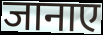
जानाए